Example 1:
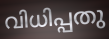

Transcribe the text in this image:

വിധിപ്പതു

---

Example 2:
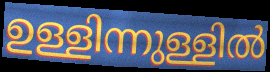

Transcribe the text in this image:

ഉള്ളിന്നുള്ളിൽ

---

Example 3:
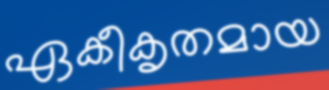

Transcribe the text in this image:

ഏകീകൃതമായ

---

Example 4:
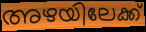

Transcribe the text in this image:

അഴയിലേക്ക്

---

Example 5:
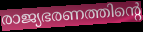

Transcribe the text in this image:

രാജ്യഭരണത്തിന്റെ